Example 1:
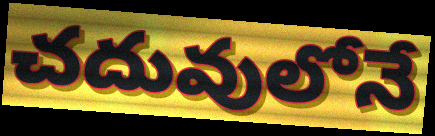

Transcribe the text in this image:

చదువులోనే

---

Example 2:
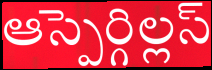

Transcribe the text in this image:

ఆస్పెర్గిల్లస్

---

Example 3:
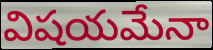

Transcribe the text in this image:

విషయమేనా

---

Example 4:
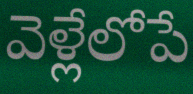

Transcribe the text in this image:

వెళ్లేలోపే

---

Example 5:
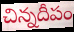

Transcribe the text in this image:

చిన్నదీపం